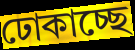
ঢোকাচ্ছে